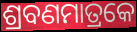
ଶ୍ରବଣମାତ୍ରକେ